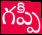
గప్పీ